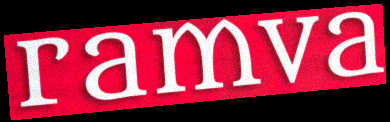
ramva